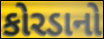
કોરડાનો